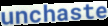
unchaste